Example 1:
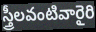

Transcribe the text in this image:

స్త్రీలవంటివారైరి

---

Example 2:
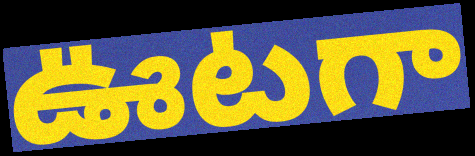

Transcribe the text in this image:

ఊటగా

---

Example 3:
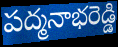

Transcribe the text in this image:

పద్మనాభరెడ్డి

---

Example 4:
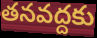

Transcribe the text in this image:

తనవద్దకు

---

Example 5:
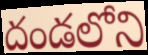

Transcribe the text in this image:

దండలోని